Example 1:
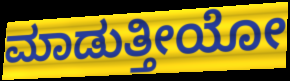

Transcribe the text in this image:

ಮಾಡುತ್ತೀಯೋ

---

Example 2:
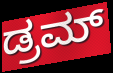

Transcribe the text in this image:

ಡ್ರಮ್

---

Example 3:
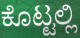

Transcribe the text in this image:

ಕೊಟ್ಟಲ್ಲಿ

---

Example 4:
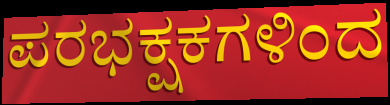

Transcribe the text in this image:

ಪರಭಕ್ಷಕಗಳಿಂದ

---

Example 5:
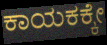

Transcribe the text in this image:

ಕಾಯಕಕ್ಕೇ